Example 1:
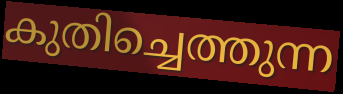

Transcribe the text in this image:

കുതിച്ചെത്തുന്ന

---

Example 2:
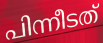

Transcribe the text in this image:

പിന്നീടത്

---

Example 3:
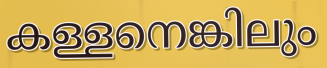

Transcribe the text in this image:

കള്ളനെങ്കിലും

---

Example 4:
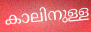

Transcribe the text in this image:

കാലിനുള്ള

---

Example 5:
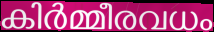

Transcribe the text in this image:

കിർമ്മീരവധം